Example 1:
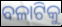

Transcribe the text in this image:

ବଳାଟିକୁ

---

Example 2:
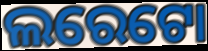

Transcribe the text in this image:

ଲରେଟୋ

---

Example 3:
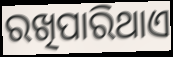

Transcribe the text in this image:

ରଖିପାରିଥାଏ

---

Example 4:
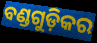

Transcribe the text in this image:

ବଣ୍ଡଗୁଡ଼ିକର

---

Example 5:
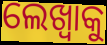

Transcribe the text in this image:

ଲେଖ୍ବାକୁ